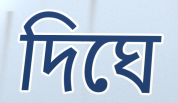
দিঘে